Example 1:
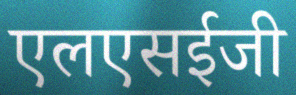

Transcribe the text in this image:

एलएसईजी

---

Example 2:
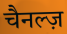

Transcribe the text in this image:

चैनल्ज़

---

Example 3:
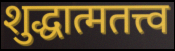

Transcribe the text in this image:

शुद्धात्मतत्त्व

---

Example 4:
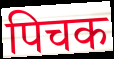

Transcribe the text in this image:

पिचक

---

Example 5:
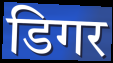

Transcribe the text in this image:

डिगर